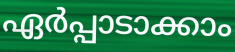
ഏർപ്പാടാക്കാം